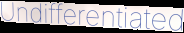
Undifferentiated